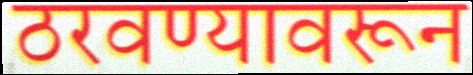
ठरवण्यावरून